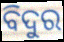
ବିଦୁର